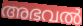
അഭവൽ